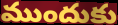
ముందుకు